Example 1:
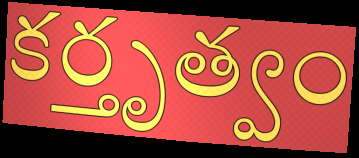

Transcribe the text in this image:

కర్తృత్వం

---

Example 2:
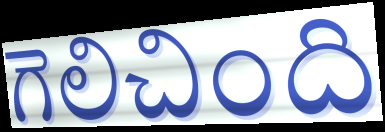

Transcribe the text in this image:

గెలిచింది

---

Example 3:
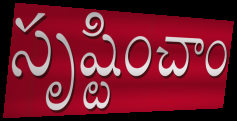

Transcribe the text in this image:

సృష్టించాం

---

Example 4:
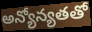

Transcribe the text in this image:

అన్యోన్యతతో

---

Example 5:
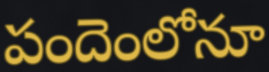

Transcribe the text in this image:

పందెంలోనూ